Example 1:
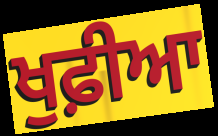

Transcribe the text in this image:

ਖੁਫ਼ੀਆ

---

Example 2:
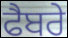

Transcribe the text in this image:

ਫੈਬਰੇ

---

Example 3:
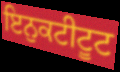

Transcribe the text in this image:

ਇਨੁਕਟੀਟੂਟ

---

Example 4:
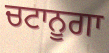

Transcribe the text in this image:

ਚਟਾਨੂਗਾ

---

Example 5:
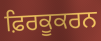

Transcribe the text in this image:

ਫ਼ਿਰਕੂਕਰਨ